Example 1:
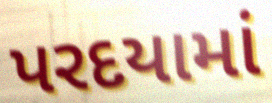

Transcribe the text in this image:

પરદયામાં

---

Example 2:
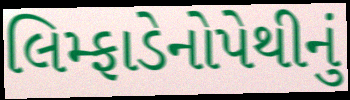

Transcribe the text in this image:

લિમ્ફાડેનોપેથીનું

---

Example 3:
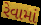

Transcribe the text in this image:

રેવામાં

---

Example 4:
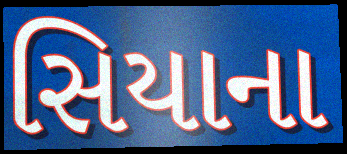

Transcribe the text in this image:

સિયાના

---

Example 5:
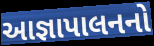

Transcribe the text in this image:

આજ્ઞાપાલનનો